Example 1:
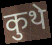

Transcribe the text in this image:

कुथे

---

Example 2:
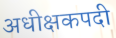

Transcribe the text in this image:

अधीक्षकपदी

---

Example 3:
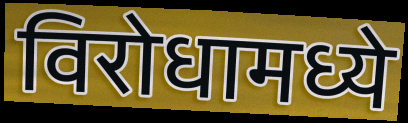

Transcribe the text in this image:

विरोधामध्ये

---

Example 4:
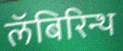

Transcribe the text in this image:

लॅबिरिन्थ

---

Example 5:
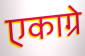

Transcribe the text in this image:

एकाग्रे